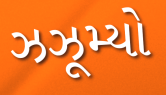
ઝઝૂમ્યો